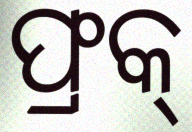
ଫ୍ରକ୍